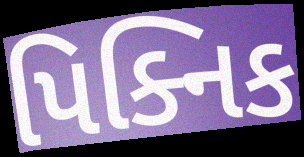
પિક્નિક